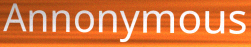
Annonymous